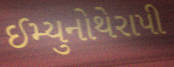
ઈમ્યુનોથેરાપી